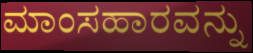
ಮಾಂಸಹಾರವನ್ನು